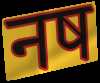
नष